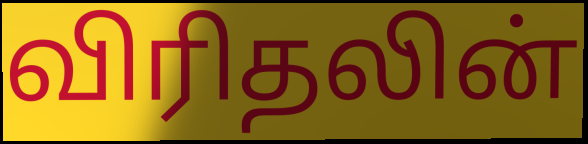
விரிதலின்